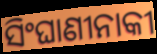
ସିଂଘାଣୀନାକୀ